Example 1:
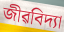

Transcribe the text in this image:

জীৱবিদ্যা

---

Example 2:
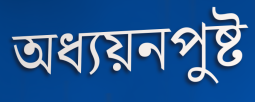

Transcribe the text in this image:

অধ্যয়নপুষ্ট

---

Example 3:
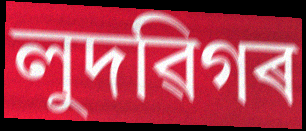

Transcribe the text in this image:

লুদৱিগৰ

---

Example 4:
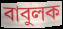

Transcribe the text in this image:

বাবুলক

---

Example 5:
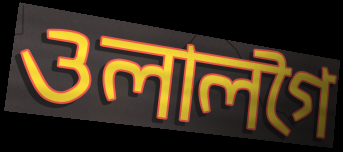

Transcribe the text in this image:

ওলালগৈ